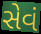
સેવં